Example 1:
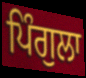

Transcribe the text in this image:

ਪਿੰਗੁਲਾ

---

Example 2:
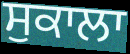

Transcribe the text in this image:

ਸੁਕਾਲਾ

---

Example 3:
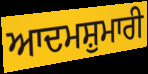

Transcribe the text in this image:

ਆਦਮਸ਼ੁਮਾਰੀ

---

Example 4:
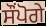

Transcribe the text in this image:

ਸੌਂਪੋਗੇ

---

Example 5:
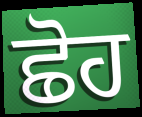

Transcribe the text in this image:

ਛੋਹ